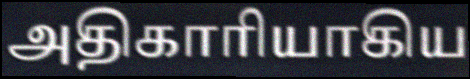
அதிகாரியாகிய